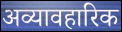
अव्यावहारिक